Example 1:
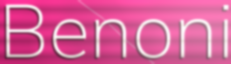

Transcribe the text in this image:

Benoni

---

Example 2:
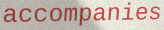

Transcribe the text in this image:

accompanies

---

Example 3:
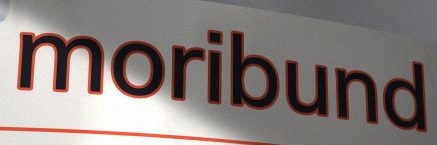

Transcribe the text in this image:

moribund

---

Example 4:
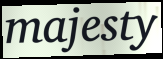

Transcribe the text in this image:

majesty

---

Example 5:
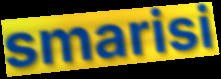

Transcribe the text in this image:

smarisi